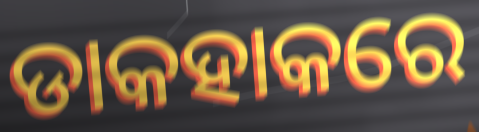
ଡାକହାକରେ